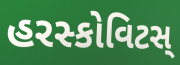
હરસ્કોવિટસ્